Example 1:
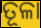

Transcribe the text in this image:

ତୂଳା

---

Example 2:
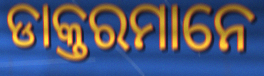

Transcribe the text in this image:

ଡାକ୍ତରମାନେ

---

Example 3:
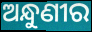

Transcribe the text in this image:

ଅନ୍ଧୁଣୀର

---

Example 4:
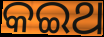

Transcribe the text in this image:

କଇଥ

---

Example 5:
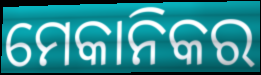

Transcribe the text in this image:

ମେକାନିକର